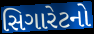
સિગારેટનો